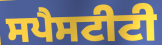
ਸਪੈਸਟੀਟੀ